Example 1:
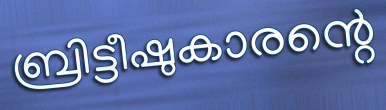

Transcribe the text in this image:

ബ്രിട്ടീഷുകാരന്റെ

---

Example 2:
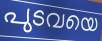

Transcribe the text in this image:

പുടവയെ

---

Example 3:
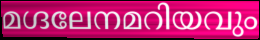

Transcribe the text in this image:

മഗ്ദലേനമറിയവും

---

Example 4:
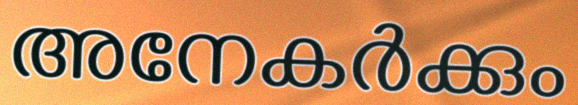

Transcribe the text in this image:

അനേകർക്കും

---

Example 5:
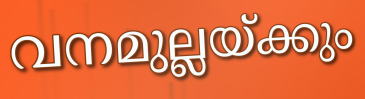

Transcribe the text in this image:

വനമുല്ലയ്ക്കും